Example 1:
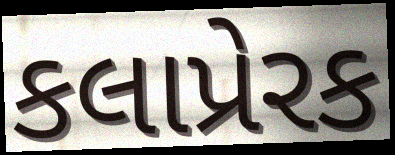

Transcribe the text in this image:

કલાપ્રેરક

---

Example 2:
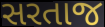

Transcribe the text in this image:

સરતાજ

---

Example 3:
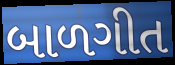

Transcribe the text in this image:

બાળગીત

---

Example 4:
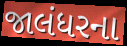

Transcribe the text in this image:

જાલંધરના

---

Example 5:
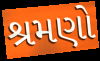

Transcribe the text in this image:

શ્રમણો